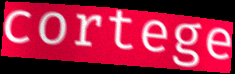
cortege